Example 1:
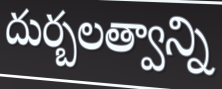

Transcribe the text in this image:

దుర్బలత్వాన్ని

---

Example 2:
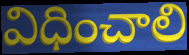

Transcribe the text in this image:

విధించాలి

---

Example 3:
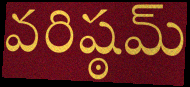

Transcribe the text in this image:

వరిష్ఠమ్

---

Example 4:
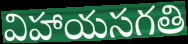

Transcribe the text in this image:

విహాయసగతి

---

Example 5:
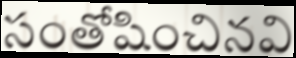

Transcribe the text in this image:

సంతోషించినవి